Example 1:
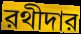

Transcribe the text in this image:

রথীদার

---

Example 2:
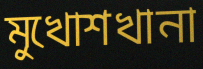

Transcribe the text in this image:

মুখোশখানা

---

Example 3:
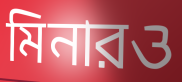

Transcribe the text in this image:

মিনারও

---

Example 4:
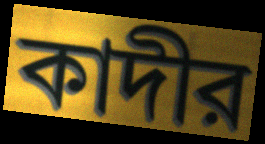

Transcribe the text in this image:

কাদীর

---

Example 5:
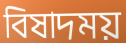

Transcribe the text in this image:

বিষাদময়